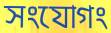
সংযোগং